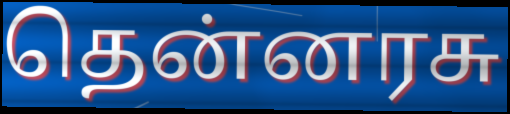
தென்னரசு